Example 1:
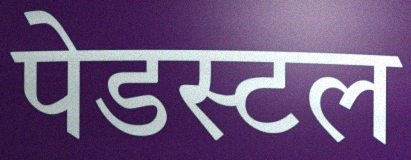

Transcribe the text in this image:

पेडस्टल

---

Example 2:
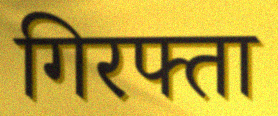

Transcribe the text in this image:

गिरफ्ता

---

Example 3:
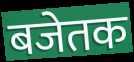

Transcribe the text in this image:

बजेतक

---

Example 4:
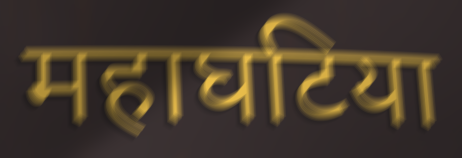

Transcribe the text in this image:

महाघटिया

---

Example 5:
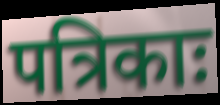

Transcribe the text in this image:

पत्रिकाः